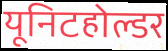
यूनिटहोल्डर